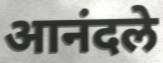
आनंदले